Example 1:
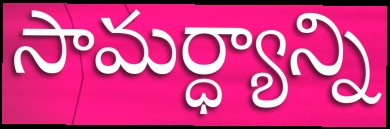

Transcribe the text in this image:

సామర్ధ్యాన్ని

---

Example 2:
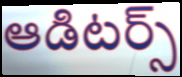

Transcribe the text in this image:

ఆడిటర్స్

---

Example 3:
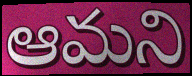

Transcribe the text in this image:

ఆమని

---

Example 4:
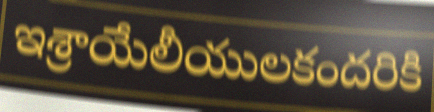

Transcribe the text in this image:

ఇశ్రాయేలీయులకందరికి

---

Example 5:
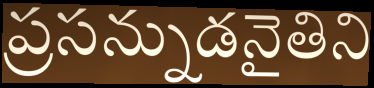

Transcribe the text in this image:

ప్రసన్నుడనైతిని